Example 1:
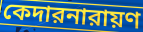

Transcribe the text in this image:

কেদারনারায়ণ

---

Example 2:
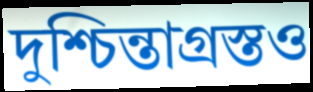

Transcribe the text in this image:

দুশ্চিন্তাগ্রস্তও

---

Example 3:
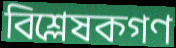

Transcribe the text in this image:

বিশ্লেষকগণ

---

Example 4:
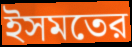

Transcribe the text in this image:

ইসমতের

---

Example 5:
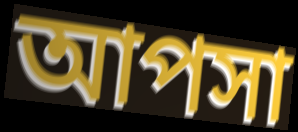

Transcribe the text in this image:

আপসা